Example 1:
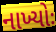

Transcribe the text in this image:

નાખ્યોઃ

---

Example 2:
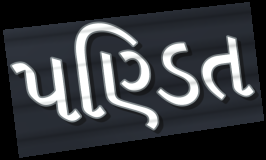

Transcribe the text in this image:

પણ્ડિત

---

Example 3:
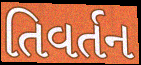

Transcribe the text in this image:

તિવર્તન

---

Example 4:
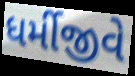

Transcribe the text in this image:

ધર્મીજીવે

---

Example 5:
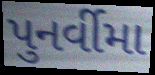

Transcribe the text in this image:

પુનર્વીમા